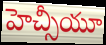
హెచ్సీయూ